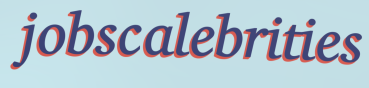
jobscalebrities